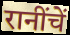
रानींचें